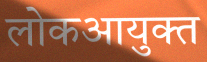
लोकआयुक्त